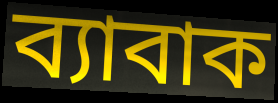
ব্যাবাক